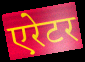
एरेटर